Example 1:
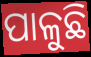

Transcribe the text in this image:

ପାଳୁଛି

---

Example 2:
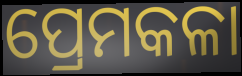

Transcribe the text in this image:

ପ୍ରେମକଳା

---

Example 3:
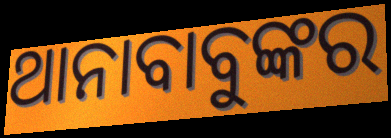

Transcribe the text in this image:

ଥାନାବାବୁଙ୍କର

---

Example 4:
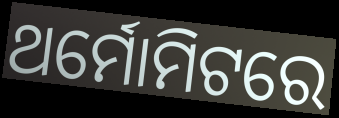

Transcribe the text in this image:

ଥର୍ମୋମିଟରେ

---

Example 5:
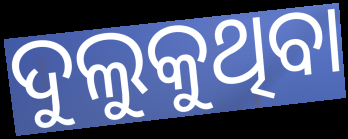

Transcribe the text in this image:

ଦୁଲୁକୁଥିବା